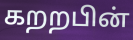
கறறபின்